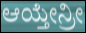
ಆಯ್ತೇನ್ರೀ